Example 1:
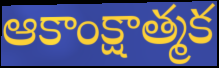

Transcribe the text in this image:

ఆకాంక్షాత్మక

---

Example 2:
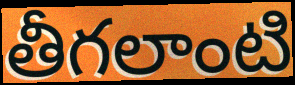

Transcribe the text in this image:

తీగలాంటి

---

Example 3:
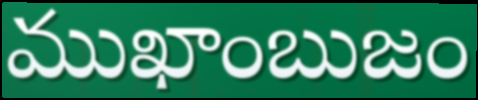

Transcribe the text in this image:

ముఖాంబుజం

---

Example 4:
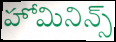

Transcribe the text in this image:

హోమినిన్స్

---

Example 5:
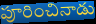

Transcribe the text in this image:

పూరించినాడు